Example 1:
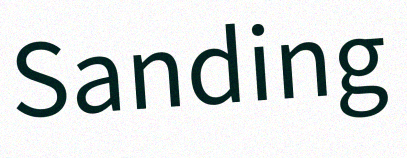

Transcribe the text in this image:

Sanding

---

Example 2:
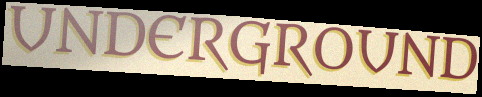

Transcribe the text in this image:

UNDERGROUND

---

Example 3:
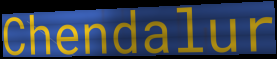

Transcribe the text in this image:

Chendalur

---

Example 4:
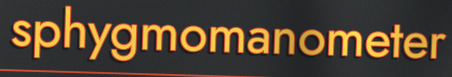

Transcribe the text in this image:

sphygmomanometer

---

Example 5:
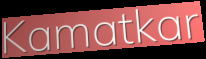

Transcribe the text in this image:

Kamatkar